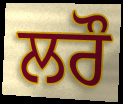
ਲਰੌ